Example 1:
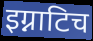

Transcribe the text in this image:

इग्नाटिच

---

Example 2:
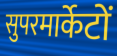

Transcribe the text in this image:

सुपरमार्केटों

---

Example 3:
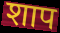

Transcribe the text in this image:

शाप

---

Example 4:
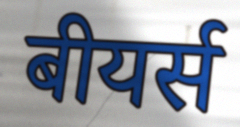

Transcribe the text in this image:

बीयर्स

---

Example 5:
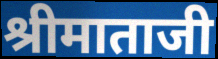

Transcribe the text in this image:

श्रीमाताजी